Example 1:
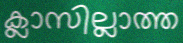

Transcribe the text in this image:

ക്ലാസില്ലാത്ത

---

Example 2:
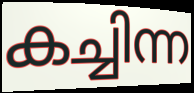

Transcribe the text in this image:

കച്ചിന്ന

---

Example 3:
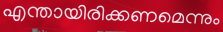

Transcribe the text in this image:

എന്തായിരിക്കണമെന്നും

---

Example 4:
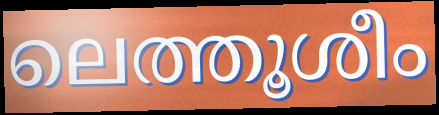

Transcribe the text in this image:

ലെത്തൂശീം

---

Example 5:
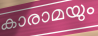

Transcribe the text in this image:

കാരാമയും